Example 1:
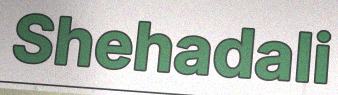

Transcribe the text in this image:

Shehadali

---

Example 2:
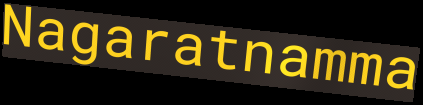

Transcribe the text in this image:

Nagaratnamma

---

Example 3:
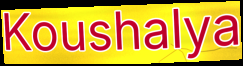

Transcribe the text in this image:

Koushalya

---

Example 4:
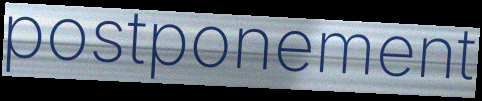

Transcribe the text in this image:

postponement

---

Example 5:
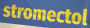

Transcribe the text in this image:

stromectol